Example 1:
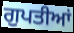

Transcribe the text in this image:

ਗੁਪਤੀਆਂ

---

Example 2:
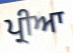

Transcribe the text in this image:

ਪ੍ਰੀਆ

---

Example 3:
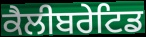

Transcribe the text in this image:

ਕੈਲੀਬਰੇਟਿਡ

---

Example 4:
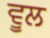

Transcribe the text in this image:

ਵੂਲ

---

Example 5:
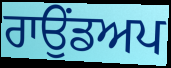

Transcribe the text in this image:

ਰਾਉਂਡਅਪ